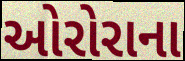
ઓરોરાના